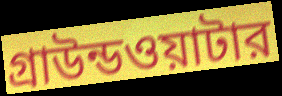
গ্রাউন্ডওয়াটার